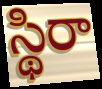
స్థిరా